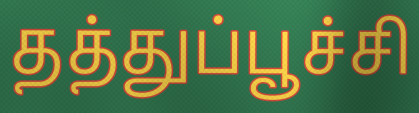
தத்துப்பூச்சி